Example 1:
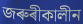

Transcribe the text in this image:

জৰুৰীকালীন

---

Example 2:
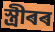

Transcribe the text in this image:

স্ত্ৰীৰৰ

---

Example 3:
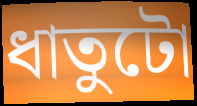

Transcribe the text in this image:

ধাতুটো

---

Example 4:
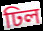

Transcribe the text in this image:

ঢিল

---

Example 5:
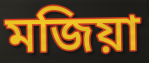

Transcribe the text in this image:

মজিয়া